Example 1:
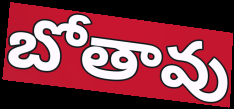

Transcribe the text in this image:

బోతావు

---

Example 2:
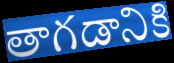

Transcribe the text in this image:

తాగడానికి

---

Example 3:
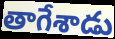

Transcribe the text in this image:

తాగేశాడు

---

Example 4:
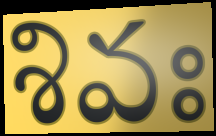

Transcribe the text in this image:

శివః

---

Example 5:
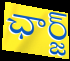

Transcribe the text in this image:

ఛార్జ్